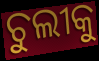
ଚୁଲୀକୁ